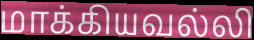
மாக்கியவல்லி